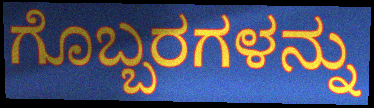
ಗೊಬ್ಬರಗಳನ್ನು